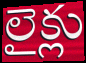
లైక్లు